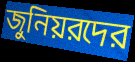
জুনিয়রদের